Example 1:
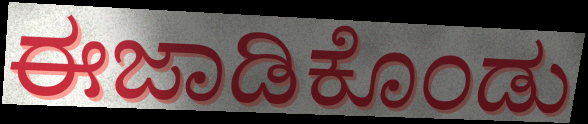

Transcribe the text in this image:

ಈಜಾಡಿಕೊಂಡು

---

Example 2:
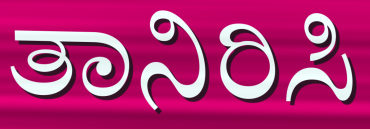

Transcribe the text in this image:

ತಾನಿರಿಸಿ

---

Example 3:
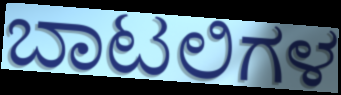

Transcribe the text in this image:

ಬಾಟಲಿಗಳ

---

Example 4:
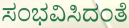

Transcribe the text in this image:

ಸಂಭವಿಸಿದಂತೆ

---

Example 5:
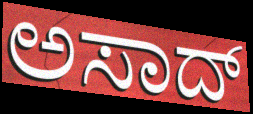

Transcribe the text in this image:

ಅಸಾದ್